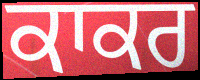
ਕਾਕਰ